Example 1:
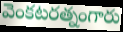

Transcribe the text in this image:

వెంకటరత్నంగారు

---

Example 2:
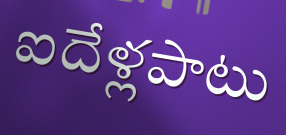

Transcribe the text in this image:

ఐదేళ్లపాటు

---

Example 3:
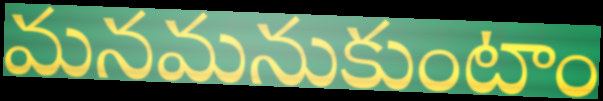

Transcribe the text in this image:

మనమనుకుంటాం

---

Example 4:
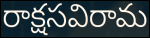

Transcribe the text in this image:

రాక్షసవిరామ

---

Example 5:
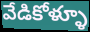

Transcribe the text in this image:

వేడికోళ్ళూ